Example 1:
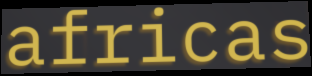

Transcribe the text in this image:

africas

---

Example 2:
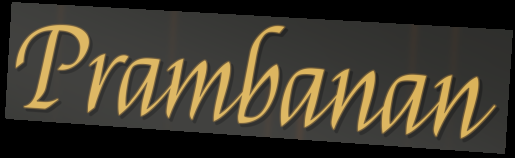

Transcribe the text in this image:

Prambanan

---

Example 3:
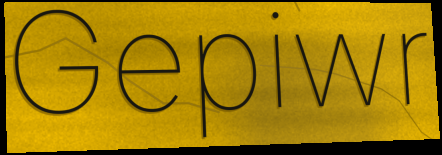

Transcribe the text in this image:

Gepiwr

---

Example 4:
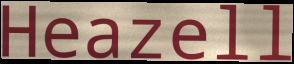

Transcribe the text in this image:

Heazell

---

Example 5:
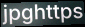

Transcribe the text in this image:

jpghttps